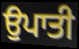
ਉਪਾਤੀ